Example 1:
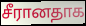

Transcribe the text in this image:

சீரானதாக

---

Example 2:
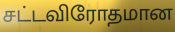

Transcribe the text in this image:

சட்டவிரோதமான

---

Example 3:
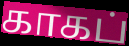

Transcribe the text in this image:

காகப்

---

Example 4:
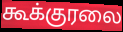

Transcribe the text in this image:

கூக்குரலை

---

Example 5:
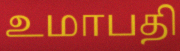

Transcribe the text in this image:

உமாபதி